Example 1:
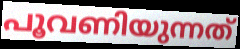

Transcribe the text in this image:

പൂവണിയുന്നത്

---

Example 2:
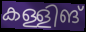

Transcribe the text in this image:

കള്ളിങ്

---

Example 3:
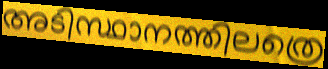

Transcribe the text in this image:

അടിസ്ഥാനത്തിലത്രെ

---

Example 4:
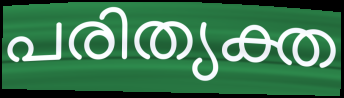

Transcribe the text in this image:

പരിത്യക്ത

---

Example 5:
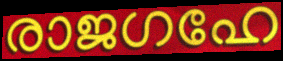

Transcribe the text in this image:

രാജഗഹേ